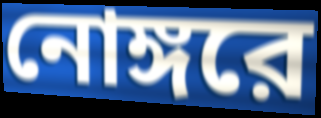
নোঙ্গরে